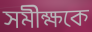
সমীক্ষকে